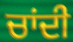
ਚਾਂਦੀ